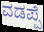
ವಡಪ್ಪೆ